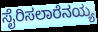
ಸೈರಿಸಲಾರೆನಯ್ಯ